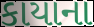
કાયાના